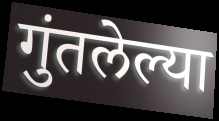
गुंतलेल्या